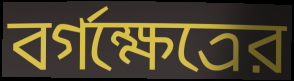
বর্গক্ষেত্রের